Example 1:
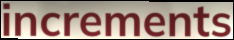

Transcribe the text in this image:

increments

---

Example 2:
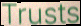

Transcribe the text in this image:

Trusts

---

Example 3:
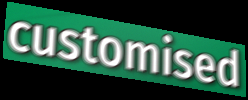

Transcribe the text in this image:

customised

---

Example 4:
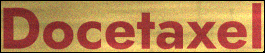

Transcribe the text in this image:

Docetaxel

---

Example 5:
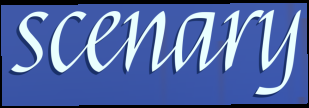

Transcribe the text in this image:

scenary